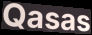
Qasas